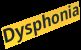
Dysphonia